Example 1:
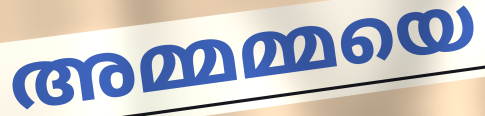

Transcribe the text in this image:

അമ്മമ്മയെ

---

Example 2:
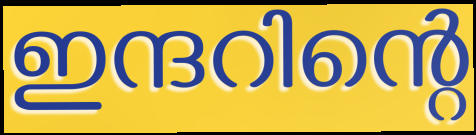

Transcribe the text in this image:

ഇന്ദറിന്റെ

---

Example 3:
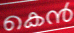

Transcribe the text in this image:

കെൻ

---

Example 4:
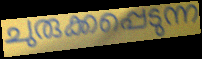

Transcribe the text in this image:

ചുരുക്കപ്പെടുന്ന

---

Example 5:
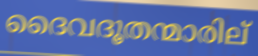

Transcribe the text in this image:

ദൈവദൂതന്മാരില്